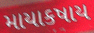
માયાકષાય